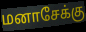
மனாசேக்கு